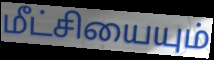
மீட்சியையும்